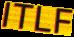
ITLF